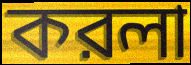
করলা